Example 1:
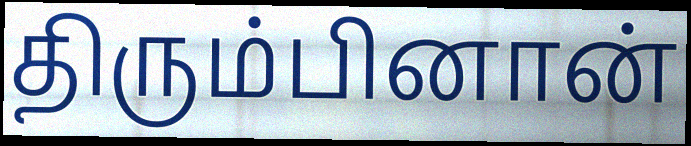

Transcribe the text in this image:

திரும்பினான்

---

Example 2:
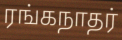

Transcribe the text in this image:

ரங்கநாதர்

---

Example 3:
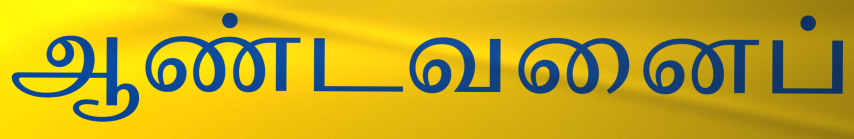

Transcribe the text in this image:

ஆண்டவனைப்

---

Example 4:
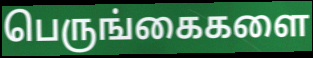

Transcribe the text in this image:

பெருங்கைகளை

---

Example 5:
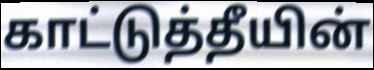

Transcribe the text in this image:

காட்டுத்தீயின்